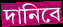
দানিবে